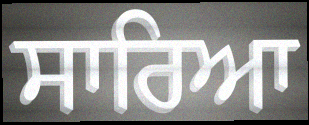
ਸਾਰਿਆ